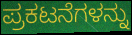
ಪ್ರಕಟನೆಗಳನ್ನು